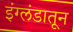
इंग्लंडातून